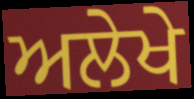
ਅਲੇਖੇ